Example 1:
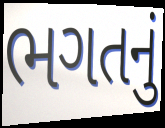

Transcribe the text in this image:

ભગતનું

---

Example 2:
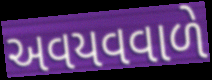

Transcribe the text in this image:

અવયવવાળે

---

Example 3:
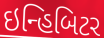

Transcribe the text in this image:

ઇન્હિબિટર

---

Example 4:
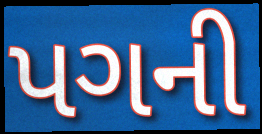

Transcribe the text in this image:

પગની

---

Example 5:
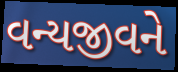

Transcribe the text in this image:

વન્યજીવને